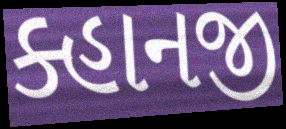
ક્હાનજી